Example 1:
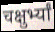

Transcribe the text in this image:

चक्षुर्भ्यां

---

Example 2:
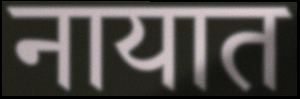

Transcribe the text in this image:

नायात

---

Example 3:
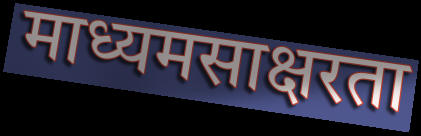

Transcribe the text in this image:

माध्यमसाक्षरता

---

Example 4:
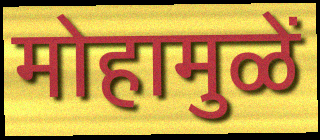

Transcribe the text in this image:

मोहामुळें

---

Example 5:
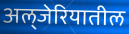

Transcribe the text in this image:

अल्जेरियातील